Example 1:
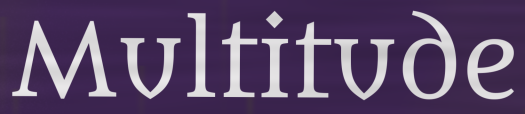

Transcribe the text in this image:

Multitude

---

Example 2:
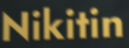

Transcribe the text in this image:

Nikitin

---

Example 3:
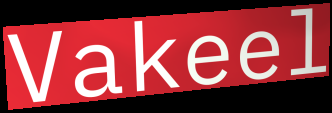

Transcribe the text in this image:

Vakeel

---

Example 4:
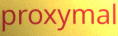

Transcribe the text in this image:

proxymal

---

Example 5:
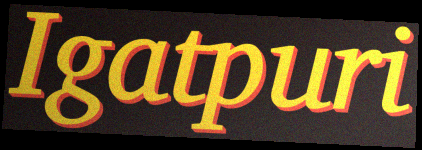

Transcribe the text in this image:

Igatpuri